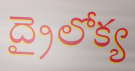
ద్రైలోక్య